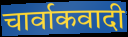
चार्वाकवादी